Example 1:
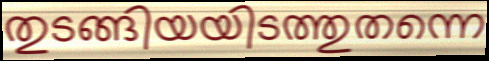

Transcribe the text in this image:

തുടങ്ങിയയിടത്തുതന്നെ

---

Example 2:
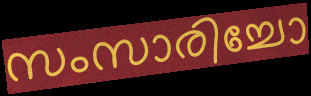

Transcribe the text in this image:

സംസാരിച്ചോ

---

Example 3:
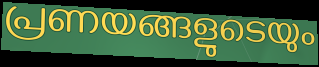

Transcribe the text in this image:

പ്രണയങ്ങളുടെയും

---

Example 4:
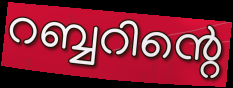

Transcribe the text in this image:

റബ്ബറിന്റെ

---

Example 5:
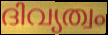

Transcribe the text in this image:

ദിവ്യത്വം